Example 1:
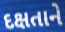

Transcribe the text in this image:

દક્ષતાને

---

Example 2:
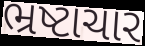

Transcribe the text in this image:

ભ્રષ્ટાચાર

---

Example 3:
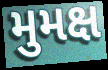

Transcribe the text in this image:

મુમક્ષ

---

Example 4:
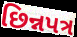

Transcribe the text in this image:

છિન્નપત્ર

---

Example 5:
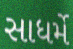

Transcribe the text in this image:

સાધર્મે